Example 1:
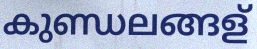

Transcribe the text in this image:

കുണ്ഡലങ്ങള്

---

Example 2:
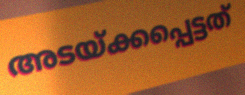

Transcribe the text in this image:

അടയ്ക്കപ്പെട്ടത്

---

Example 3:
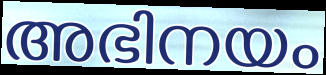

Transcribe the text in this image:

അഭിനയം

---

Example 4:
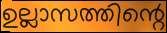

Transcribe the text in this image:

ഉല്ലാസത്തിന്റെ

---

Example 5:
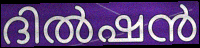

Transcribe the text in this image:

ദിൽഷൻ